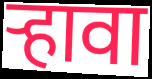
र्‍हावा